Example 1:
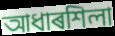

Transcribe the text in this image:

আধাৰশিলা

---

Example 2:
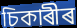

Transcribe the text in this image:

চিকাৰীৰ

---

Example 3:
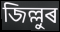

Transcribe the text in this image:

জিল্লুৰ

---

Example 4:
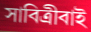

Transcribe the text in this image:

সাবিত্ৰীবাই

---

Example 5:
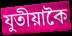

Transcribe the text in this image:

যুতীয়াকৈ